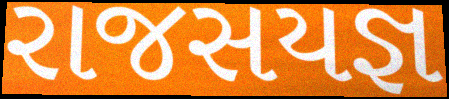
રાજસયજ્ઞ